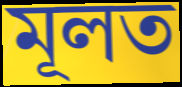
মূলত